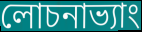
লোচনাভ্যাং